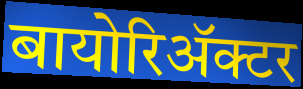
बायोरिॲक्टर